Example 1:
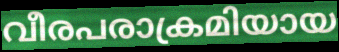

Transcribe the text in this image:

വീരപരാക്രമിയായ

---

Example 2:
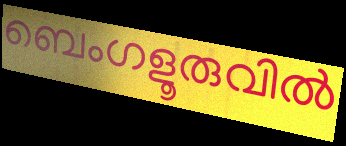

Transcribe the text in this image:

ബെംഗളൂരുവിൽ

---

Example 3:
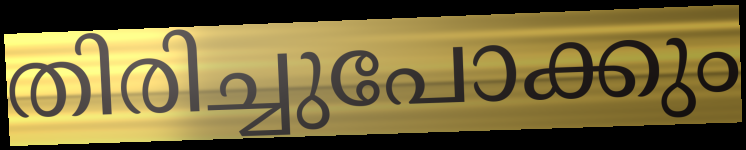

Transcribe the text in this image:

തിരിച്ചുപോക്കും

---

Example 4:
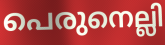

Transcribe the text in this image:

പെരുനെല്ലി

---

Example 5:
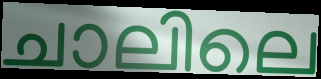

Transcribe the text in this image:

ചാലിലെ